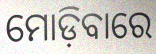
ମୋଡ଼ିବାରେ